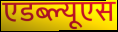
एडब्ल्यूएस